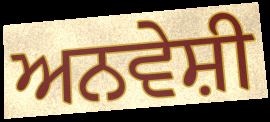
ਅਨਵੇਸ਼ੀ